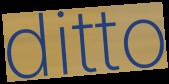
ditto